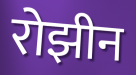
रोझीन